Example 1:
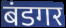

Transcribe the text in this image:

बंडगर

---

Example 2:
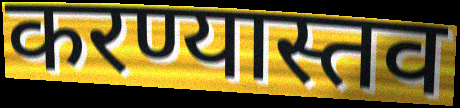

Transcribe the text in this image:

करण्यास्तव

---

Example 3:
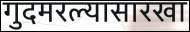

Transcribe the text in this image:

गुदमरल्यासारखा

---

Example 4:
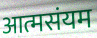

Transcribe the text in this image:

आत्मसंयम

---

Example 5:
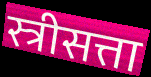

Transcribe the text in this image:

स्त्रीसत्ता